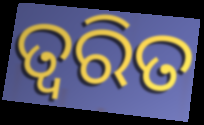
ତ୍ଵରିତ